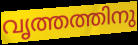
വൃത്തത്തിനു